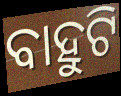
ବାହୁଟି